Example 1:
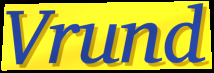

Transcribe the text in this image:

Vrund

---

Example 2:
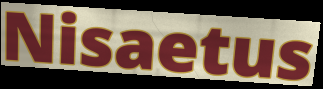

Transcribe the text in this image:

Nisaetus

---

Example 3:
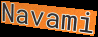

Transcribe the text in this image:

Navami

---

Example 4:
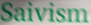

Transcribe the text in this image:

Saivism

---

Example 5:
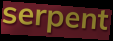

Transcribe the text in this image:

serpent